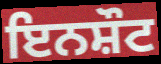
ਇਨਸ਼ੌਟ